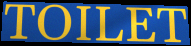
TOILET